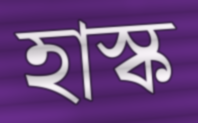
হাস্ক